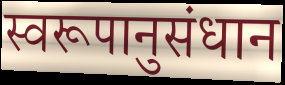
स्वरूपानुसंधान